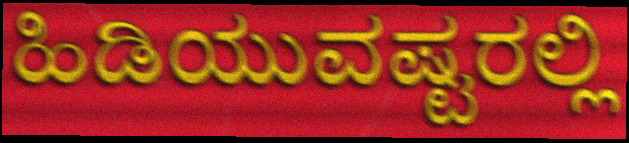
ಹಿಡಿಯುವಷ್ಟರಲ್ಲಿ